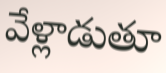
వేళ్లాడుతూ